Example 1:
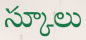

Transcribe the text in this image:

స్కూలు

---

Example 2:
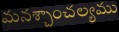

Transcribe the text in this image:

మనశ్చాంచల్యము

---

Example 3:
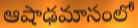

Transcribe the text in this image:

ఆషాఢమాసంలో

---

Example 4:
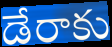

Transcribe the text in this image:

డేరాకు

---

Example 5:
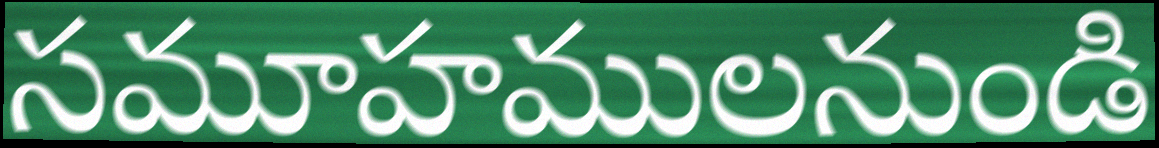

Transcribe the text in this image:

సమూహములనుండి